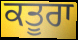
ਕਤੂਰਾ